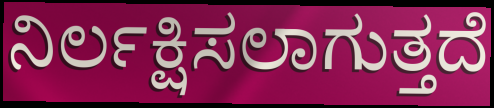
ನಿರ್ಲಕ್ಷಿಸಲಾಗುತ್ತದೆ